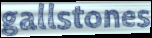
gallstones